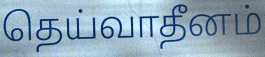
தெய்வாதீனம்